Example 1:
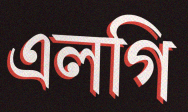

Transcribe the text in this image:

এলগি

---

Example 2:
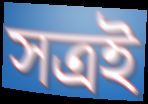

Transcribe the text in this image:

সত্ৰই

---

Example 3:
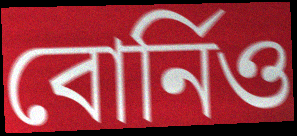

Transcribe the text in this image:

বোৰ্নিও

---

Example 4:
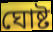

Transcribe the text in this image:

ঘোষ্ট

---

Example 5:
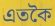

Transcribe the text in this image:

এতকৈ